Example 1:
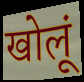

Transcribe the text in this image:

खोलूं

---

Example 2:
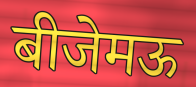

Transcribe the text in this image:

बीजेमऊ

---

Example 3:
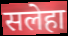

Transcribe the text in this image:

सलेहा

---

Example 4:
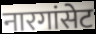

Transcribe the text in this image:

नारगांसेट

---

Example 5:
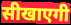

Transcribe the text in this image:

सीखाएगी